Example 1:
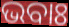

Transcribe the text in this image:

ଭବାଃ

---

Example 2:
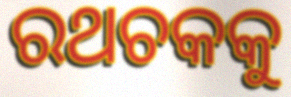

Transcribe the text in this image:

ରଥଚକକୁ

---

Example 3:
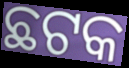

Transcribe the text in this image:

ଛଟକ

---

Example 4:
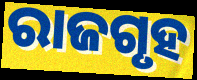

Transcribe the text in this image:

ରାଜଗୃହ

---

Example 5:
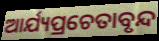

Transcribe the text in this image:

ଆର୍ଯ୍ୟପ୍ରଚେତାବୃନ୍ଦ